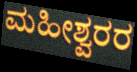
ಮಹೀಶ್ವರರ